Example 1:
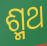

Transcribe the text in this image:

ଶ୍ମଥ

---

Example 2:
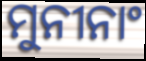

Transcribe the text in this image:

ମୁନୀନାଂ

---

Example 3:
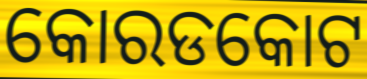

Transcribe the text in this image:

କୋରଡକୋଟ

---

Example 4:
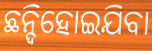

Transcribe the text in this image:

ଛନ୍ଦିହୋଇଯିବା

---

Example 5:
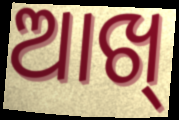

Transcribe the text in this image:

ଆଖ୍